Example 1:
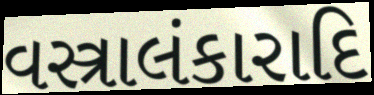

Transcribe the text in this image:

વસ્ત્રાલંકારાદિ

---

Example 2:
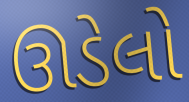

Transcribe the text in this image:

ઊડેલો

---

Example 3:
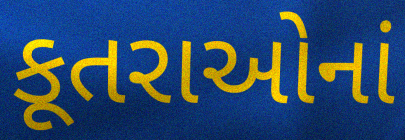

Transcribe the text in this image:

કૂતરાઓનાં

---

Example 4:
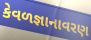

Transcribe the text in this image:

કેવળજ્ઞાનાવરણ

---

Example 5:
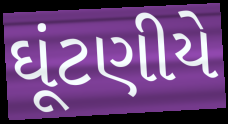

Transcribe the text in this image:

ઘૂંટણીયે